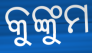
କୁଙ୍କୁମ